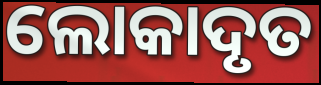
ଲୋକାଦୃତ